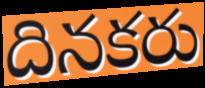
దినకరు